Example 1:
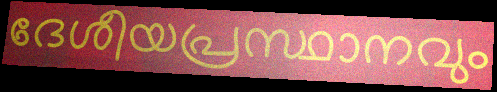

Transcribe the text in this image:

ദേശീയപ്രസ്ഥാനവും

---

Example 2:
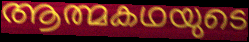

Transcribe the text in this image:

ആത്മകഥയുടെ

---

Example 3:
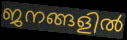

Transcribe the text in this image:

ജനങ്ങളിൽ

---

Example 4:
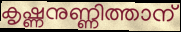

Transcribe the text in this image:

കൃഷ്ണനുണ്ണിത്താന്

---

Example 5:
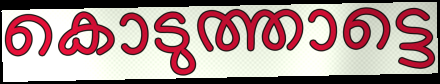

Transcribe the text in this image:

കൊടുത്താട്ടെ